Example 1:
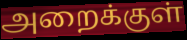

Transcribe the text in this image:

அறைக்குள்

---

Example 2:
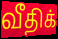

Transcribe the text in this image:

வீதிக்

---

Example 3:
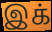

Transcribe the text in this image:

இக்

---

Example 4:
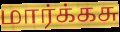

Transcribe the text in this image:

மார்க்கசு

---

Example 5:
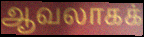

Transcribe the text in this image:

ஆவலாகக்